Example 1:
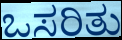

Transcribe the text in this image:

ಒಸರಿತು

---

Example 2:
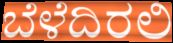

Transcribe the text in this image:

ಬೆಳೆದಿರಲಿ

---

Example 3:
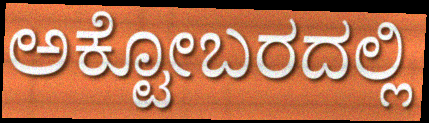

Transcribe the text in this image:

ಅಕ್ಟೋಬರದಲ್ಲಿ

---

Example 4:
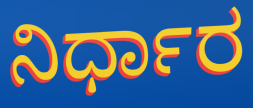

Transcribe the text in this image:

ನಿರ್ಧಾರ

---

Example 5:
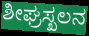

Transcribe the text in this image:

ಶೀಘ್ರಸ್ಖಲನ